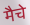
मैचे